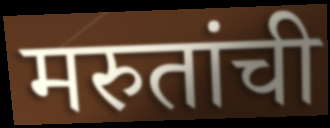
मरुतांची